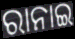
ରାନାଇ